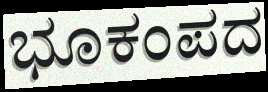
ಭೂಕಂಪದ